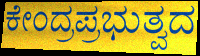
ಕೇಂದ್ರಪ್ರಭುತ್ವದ